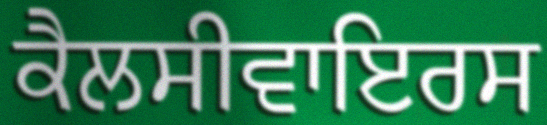
ਕੈਲਸੀਵਾਇਰਸ